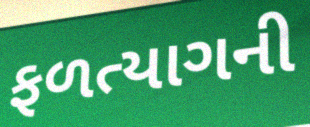
ફળત્યાગની